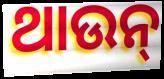
ଥାଉନ୍